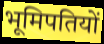
भूमिपतियों